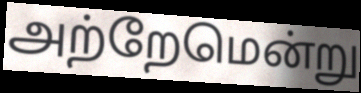
அற்றேமென்று